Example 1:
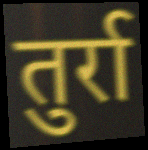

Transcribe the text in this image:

तुर्रा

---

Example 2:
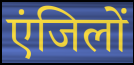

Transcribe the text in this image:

एंजिलों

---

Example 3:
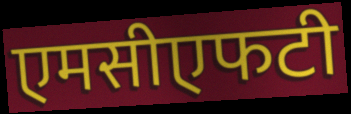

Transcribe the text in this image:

एमसीएफटी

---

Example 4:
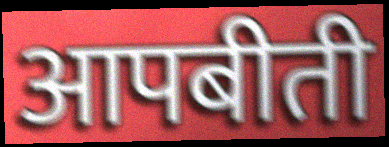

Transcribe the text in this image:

आपबीती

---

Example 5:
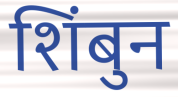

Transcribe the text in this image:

शिंबुन